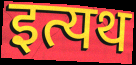
इत्यथ